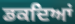
ਡਕਦਿਆਂ